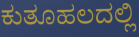
ಕುತೂಹಲದಲ್ಲಿ